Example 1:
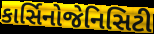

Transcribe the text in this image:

કાર્સિનોજેનિસિટી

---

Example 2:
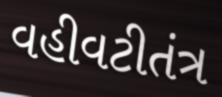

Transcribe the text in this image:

વહીવટીતંત્ર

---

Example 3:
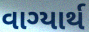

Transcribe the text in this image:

વાગ્યાર્થ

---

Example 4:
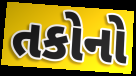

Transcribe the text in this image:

તકોનો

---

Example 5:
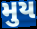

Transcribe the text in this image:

મુય